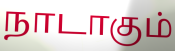
நாடாகும்